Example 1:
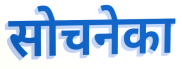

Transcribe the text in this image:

सोचनेका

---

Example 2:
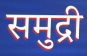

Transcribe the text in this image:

समुद्री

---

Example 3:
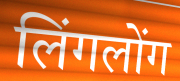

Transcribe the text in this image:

लिंगलोंग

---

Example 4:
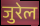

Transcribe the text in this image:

जुरेल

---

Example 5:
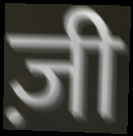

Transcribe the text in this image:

ज़ी